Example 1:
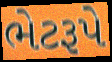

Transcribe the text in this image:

ભેટરૂપે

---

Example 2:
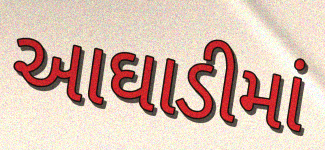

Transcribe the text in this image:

આઘાડીમાં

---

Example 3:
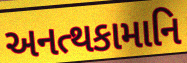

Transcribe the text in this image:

અનત્થકામાનિ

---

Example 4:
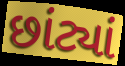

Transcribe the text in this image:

છાંટ્યાં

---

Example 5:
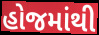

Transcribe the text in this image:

હોજમાંથી